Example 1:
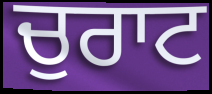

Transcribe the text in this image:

ਚੁਰਾਟ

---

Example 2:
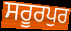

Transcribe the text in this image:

ਸਰੂਰਪੁਰ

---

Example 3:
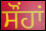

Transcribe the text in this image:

ਸੌਂਹਾਂ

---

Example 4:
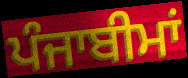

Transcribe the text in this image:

ਪੰਜਾਬੀਮਾਂ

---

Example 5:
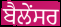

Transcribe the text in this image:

ਬੈਲੇਂਸਰ